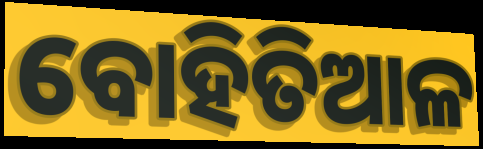
ବୋହିତିଆଳ